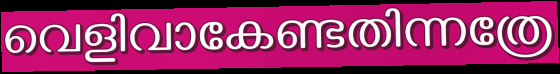
വെളിവാകേണ്ടതിന്നത്രേ